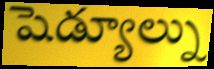
షెడ్యూల్ను